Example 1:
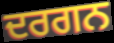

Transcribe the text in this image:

ਦਰਗਨ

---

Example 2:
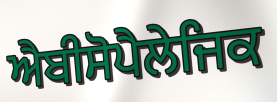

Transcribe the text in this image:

ਐਬੀਸੋਪੈਲੇਜਿਕ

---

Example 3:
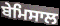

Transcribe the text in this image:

ਬੇਮਿਸਾਲ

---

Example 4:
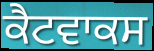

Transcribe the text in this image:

ਕੈਟਵਾਕਸ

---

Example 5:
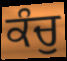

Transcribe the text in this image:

ਕੰਚੁ